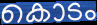
കൊടം